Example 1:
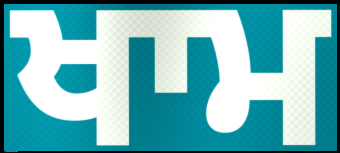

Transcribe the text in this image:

ਖਾਮ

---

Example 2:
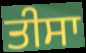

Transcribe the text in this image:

ਤੀਸਾ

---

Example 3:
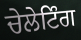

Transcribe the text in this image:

ਚੇਲੇਟਿੰਗ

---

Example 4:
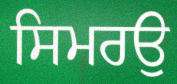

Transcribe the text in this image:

ਸਿਮਰਉ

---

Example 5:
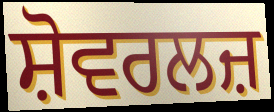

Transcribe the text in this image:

ਸ਼ੋਵਰਲਜ਼